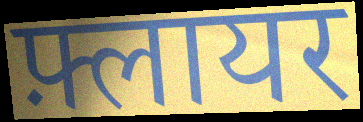
फ़्लायर